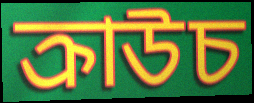
ক্রাউচ